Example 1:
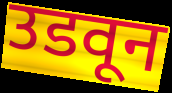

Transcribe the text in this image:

उडवून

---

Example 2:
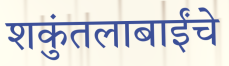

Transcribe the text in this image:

शकुंतलाबाईंचे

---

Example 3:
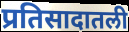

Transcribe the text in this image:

प्रतिसादातली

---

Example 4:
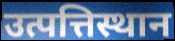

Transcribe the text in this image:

उत्पत्तिस्थान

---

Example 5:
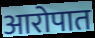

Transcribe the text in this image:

आरोपात